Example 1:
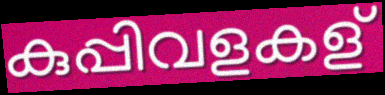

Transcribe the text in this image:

കുപ്പിവളകള്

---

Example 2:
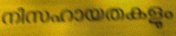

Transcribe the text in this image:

നിസഹായതകളും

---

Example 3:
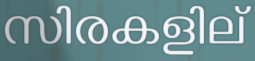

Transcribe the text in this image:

സിരകളില്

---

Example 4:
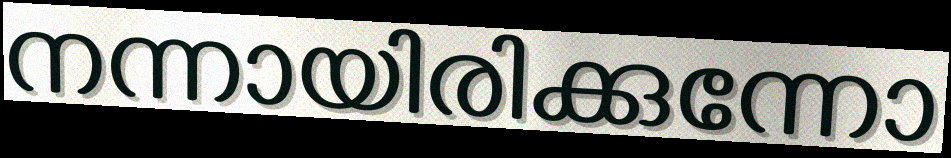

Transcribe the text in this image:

നന്നായിരിക്കുന്നോ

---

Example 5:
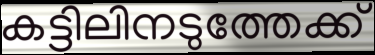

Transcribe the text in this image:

കട്ടിലിനടുത്തേക്ക്